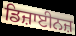
ਡਿਜ਼ਾਈਨਜ਼